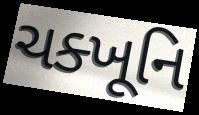
ચક્ખૂનિ